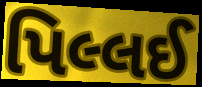
પિલ્લઈ